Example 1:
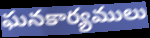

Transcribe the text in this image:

ఘనకార్యములు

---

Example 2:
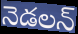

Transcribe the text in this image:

నెడలన్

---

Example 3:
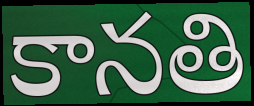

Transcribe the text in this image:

కానతి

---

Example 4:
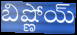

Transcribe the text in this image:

బిష్ణోయ్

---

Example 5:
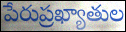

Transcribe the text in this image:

పేరుప్రఖ్యాతుల